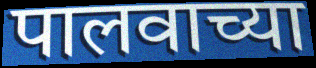
पालवाच्या